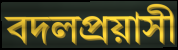
বদলপ্রয়াসী